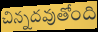
చిన్నదవుతోంది